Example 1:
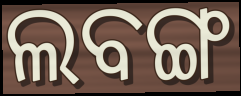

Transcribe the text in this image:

ଲବଙ୍ଗ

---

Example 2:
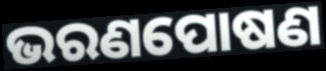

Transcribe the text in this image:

ଭରଣପୋଷଣ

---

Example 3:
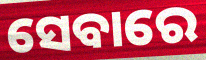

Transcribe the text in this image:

ସେବାରେ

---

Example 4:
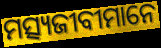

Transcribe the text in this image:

ମତ୍ସ୍ୟଜୀବୀମାନେ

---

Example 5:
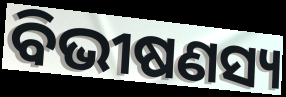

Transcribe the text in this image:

ବିଭୀଷଣସ୍ୟ